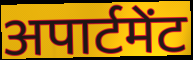
अपार्टमेंट